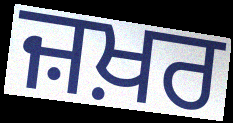
ਜ਼ਖ਼ਰ